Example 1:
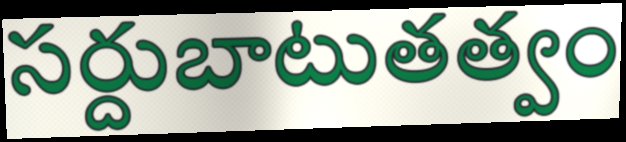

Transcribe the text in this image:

సర్దుబాటుతత్వం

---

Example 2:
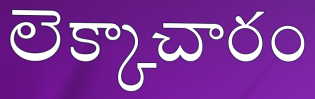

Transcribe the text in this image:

లెక్కాచారం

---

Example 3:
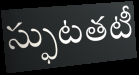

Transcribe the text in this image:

స్ఫుటతటీ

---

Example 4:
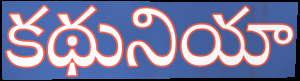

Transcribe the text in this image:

కథునియా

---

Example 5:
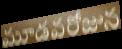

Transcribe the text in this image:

మూడవరోజున